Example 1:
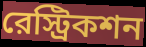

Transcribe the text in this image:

রেস্ট্রিকশন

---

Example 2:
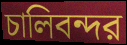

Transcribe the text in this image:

চালিবন্দর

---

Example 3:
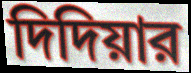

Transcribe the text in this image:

দিদিয়ার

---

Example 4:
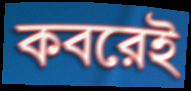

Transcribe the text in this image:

কবরেই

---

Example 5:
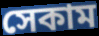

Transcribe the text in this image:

সেকাম